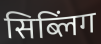
सिब्लिंग